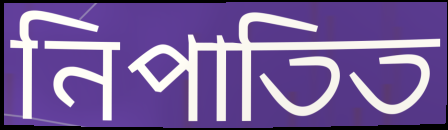
নিপাতিত